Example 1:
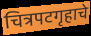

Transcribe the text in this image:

चित्रपटगृहाचे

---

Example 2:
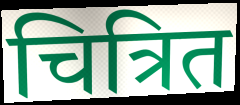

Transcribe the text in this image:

चित्रित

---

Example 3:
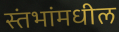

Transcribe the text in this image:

स्तंभांमधील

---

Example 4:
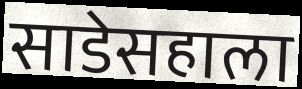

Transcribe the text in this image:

साडेसहाला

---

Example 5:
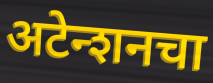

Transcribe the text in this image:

अटेन्शनचा